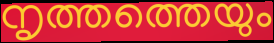
നൃത്തത്തെയും